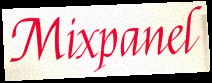
Mixpanel